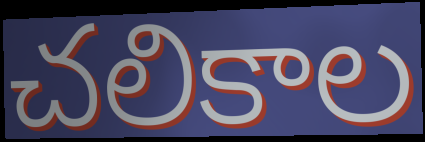
చలికాల